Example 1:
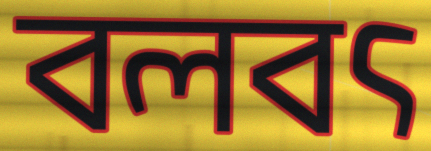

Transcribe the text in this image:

বলবৎ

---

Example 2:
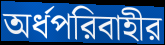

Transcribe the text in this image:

অর্ধপরিবাহীর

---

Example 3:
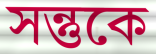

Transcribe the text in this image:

সন্তুকে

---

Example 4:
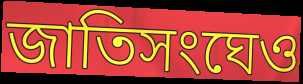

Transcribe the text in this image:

জাতিসংঘেও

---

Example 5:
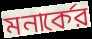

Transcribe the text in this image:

মনার্কের